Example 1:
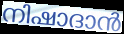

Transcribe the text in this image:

നിഷാദാൻ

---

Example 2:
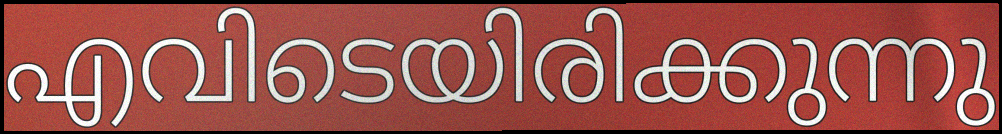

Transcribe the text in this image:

എവിടെയിരിക്കുന്നു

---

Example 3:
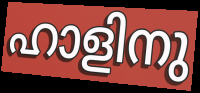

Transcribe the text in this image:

ഹാളിനു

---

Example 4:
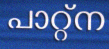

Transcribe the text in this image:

പാറ്റ്ന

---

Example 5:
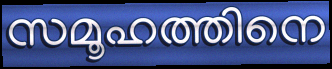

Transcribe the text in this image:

സമൂഹത്തിനെ